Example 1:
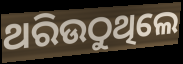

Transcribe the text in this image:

ଥରିଉଠୁଥିଲେ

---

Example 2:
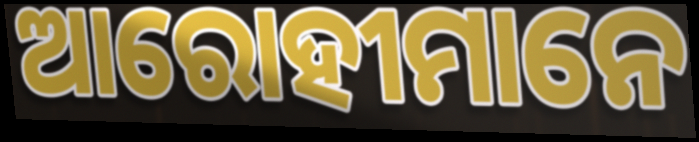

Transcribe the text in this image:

ଆରୋହୀମାନେ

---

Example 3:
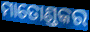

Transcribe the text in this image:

ମାତୋଣ୍ଡକର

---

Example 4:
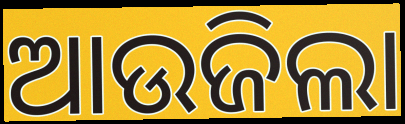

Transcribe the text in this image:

ଆଉଜିଲା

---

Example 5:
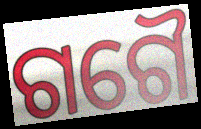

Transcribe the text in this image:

ଗଗୈ